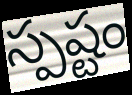
స్పష్టం